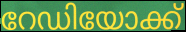
റേഡിയോക്ക്